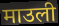
माउली